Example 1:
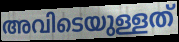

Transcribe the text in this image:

അവിടെയുള്ളത്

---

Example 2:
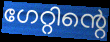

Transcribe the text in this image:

ഗേറ്റിന്റെ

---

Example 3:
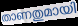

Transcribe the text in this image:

താണതുമായി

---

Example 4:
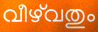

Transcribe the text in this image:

വീഴ്‌വതും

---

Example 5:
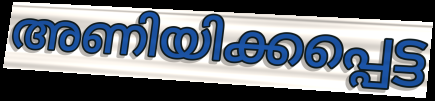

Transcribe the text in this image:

അണിയിക്കപ്പെട്ട